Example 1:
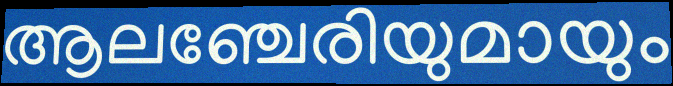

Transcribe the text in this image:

ആലഞ്ചേരിയുമായും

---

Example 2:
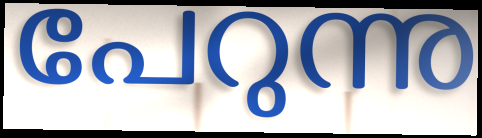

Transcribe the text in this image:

പേറുന്നു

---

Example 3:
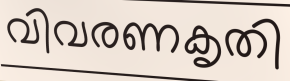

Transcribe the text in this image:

വിവരണകൃതി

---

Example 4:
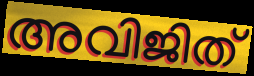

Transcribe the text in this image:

അവിജിത്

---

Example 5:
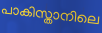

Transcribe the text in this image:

പാകിസ്താനിലെ